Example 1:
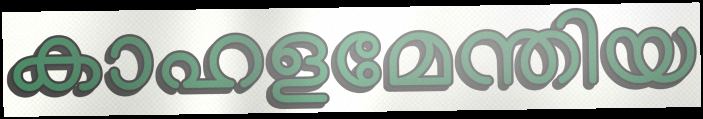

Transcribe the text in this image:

കാഹളമേന്തിയ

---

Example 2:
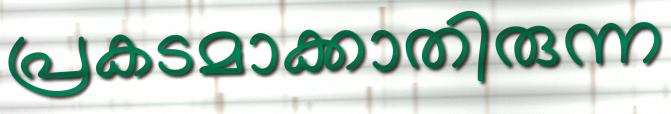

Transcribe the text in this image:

പ്രകടമാക്കാതിരുന്ന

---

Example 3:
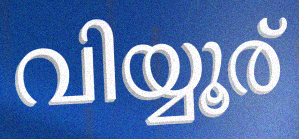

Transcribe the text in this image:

വിയ്യൂര്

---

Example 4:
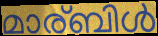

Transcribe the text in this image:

മാര്ബിൾ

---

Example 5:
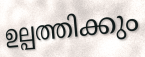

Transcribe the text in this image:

ഉല്പത്തിക്കും